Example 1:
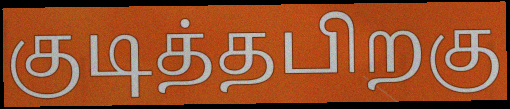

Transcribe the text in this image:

குடித்தபிறகு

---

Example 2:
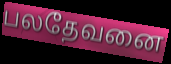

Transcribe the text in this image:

பலதேவனை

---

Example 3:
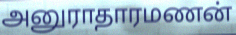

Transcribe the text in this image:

அனுராதாரமணன்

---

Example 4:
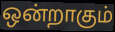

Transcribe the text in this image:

ஒன்றாகும்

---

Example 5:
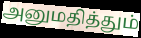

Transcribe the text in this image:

அனுமதித்தும்